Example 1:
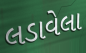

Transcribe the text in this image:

લડાવેલા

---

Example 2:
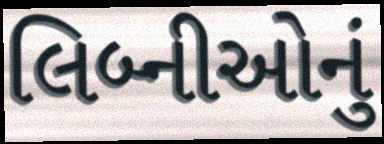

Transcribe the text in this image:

લિબ્નીઓનું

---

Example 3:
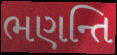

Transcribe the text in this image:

ભણન્તિ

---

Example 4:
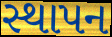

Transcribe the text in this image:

સ્થાપન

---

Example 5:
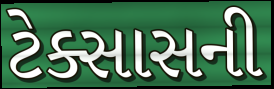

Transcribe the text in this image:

ટેક્સાસની